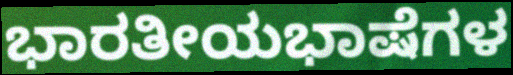
ಭಾರತೀಯಭಾಷೆಗಳ